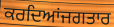
ਕਰਦਿਆਂਜਗਤਾਰ